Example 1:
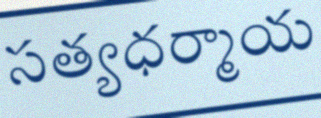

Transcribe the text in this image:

సత్యధర్మాయ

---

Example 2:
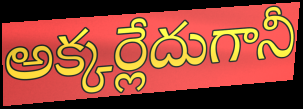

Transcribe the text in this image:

అక్కర్లేదుగానీ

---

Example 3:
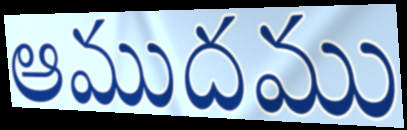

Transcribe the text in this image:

ఆముదము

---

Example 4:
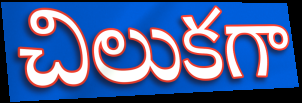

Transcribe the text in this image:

చిలుకగా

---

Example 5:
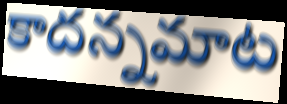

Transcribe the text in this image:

కాదన్నమాట